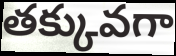
తక్కువగా